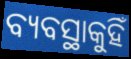
ବ୍ୟବସ୍ଥାକୁହିଁ